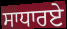
ਸਾਧਾਰਏ